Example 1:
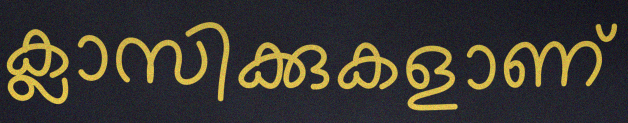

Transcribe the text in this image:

ക്ലാസിക്കുകളാണ്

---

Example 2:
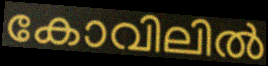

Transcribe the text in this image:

കോവിലിൽ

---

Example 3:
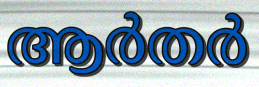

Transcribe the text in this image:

ആർതർ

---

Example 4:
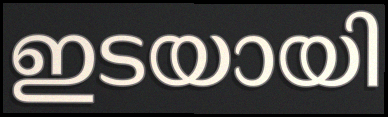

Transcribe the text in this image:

ഇടയായി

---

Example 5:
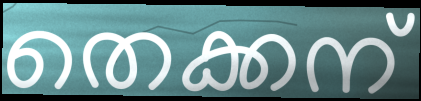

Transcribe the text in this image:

തെക്കന്